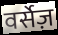
वर्सेज़